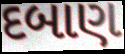
દબાણ